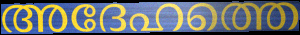
അദേഹത്തെ